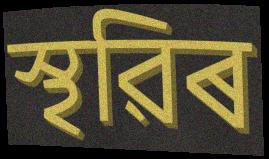
স্থৱিৰ